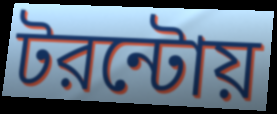
টরন্টোয়